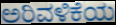
ಅರಿವಳಿಕೆಯ